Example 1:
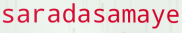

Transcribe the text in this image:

saradasamaye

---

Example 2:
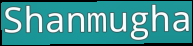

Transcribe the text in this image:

Shanmugha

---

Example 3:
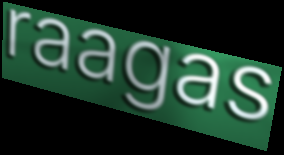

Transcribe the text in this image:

raagas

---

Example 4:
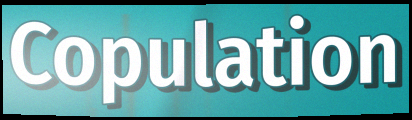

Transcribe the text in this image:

Copulation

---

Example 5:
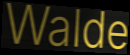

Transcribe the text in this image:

Walde